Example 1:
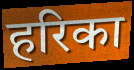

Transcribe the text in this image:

हरिका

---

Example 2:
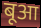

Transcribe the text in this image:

बूआ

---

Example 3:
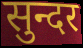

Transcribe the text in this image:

सुन्दर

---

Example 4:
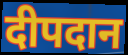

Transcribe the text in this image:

दीपदान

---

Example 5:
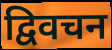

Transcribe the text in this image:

द्विवचन